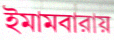
ইমামবারায়